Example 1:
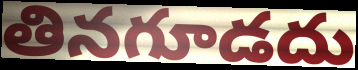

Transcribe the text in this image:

తినగూడదు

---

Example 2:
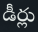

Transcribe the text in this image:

డీర్లు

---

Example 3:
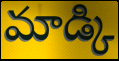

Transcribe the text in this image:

మాడ్కి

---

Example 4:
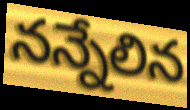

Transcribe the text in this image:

నన్నేలిన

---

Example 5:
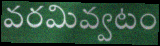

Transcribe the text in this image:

వరమివ్వటం